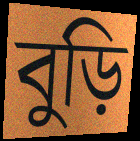
বুড়ি